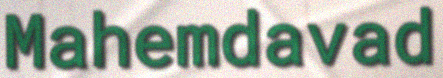
Mahemdavad